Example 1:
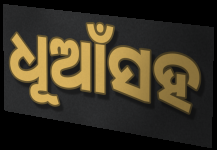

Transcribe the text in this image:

ଧୂଆଁସହ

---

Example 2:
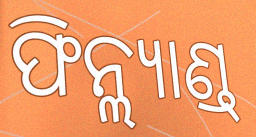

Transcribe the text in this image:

ଫିନ୍ଲ୍ୟାଣ୍ଡ୍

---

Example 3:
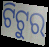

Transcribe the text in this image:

ଟିଟୁର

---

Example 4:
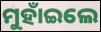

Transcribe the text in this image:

ମୁହାଁଇଲେ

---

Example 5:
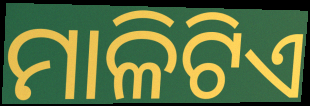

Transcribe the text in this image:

ମାଳିଟିଏ